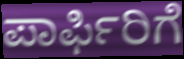
ಪಾರ್ಫಿರಿಗೆ